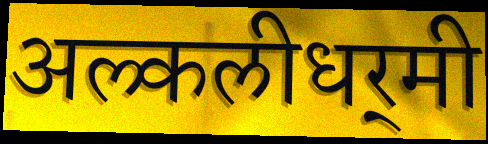
अल्कलीधर्मी